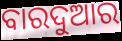
ବାରଦୁଆର